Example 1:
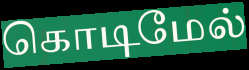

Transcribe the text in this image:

கொடிமேல்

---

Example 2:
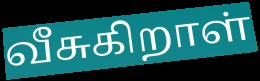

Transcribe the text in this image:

வீசுகிறாள்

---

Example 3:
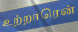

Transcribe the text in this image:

உற்றாரென்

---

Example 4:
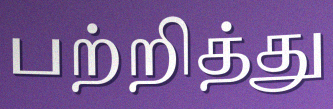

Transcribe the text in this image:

பற்றித்து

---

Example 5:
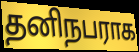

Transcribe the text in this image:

தனிநபராக